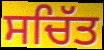
ਸਚਿੱਤ